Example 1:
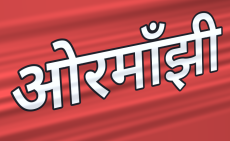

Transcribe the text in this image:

ओरमाँझी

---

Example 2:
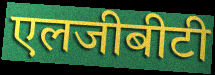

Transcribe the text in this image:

एलजीबीटी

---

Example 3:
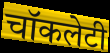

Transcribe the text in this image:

चॉकलेटी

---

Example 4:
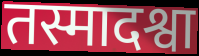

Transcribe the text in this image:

तस्मादश्वा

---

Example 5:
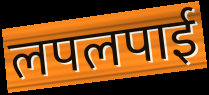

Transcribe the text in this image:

लपलपाई